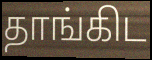
தாங்கிட